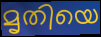
മൃതിയെ